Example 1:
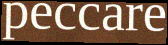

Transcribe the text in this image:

peccare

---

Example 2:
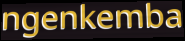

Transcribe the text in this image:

ngenkemba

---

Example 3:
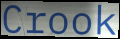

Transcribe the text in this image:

Crook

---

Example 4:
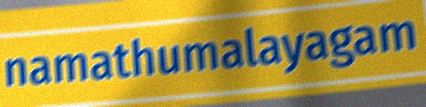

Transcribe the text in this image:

namathumalayagam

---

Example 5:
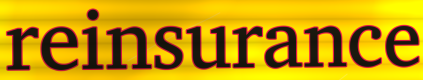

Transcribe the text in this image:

reinsurance